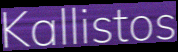
Kallistos